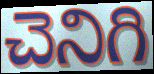
చెనిగి